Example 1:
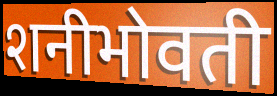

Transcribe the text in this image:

शनीभोवती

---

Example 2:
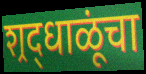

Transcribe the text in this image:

श्रद्धाळूंचा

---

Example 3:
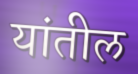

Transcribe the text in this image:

यांतील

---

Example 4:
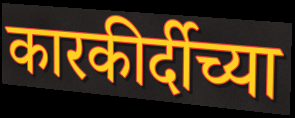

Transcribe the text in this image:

कारकीर्दीच्या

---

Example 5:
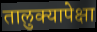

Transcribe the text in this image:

तालुक्यापेक्षा